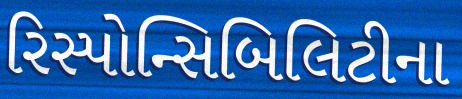
રિસ્પોન્સિબિલિટીના